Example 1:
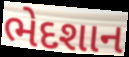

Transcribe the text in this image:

ભેદશાન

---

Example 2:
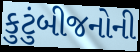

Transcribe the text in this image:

કુટુંબીજનોની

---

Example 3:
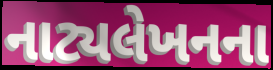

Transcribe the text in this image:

નાટ્યલેખનના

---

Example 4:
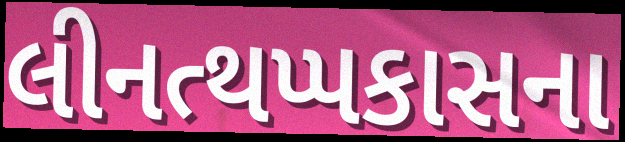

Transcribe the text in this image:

લીનત્થપ્પકાસના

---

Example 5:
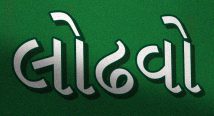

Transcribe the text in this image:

લોઢવો